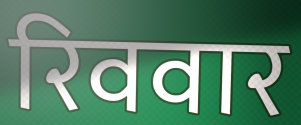
रिववार